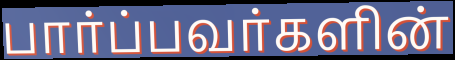
பார்ப்பவர்களின்